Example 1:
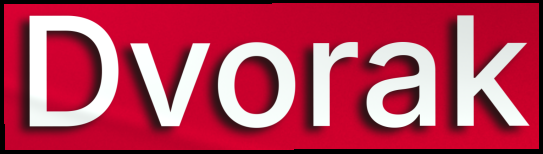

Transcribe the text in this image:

Dvorak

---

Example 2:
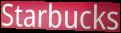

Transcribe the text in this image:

Starbucks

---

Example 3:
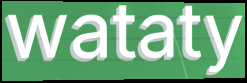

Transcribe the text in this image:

wataty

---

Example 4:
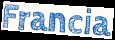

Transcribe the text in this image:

Francia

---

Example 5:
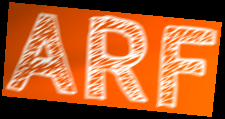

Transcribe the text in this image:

ARF